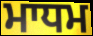
ਮਾਧਮ